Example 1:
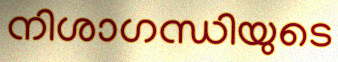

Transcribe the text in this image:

നിശാഗന്ധിയുടെ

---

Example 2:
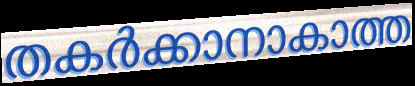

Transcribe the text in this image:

തകർക്കാനാകാത്ത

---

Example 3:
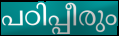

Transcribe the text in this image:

പഠിപ്പീരും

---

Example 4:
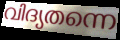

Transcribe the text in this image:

വിദ്യതന്നെ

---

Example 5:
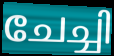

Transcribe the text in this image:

ചേച്ചി